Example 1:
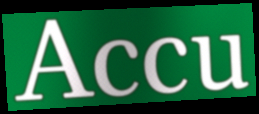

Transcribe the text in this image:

Accu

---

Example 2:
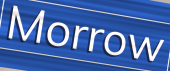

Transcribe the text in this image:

Morrow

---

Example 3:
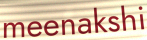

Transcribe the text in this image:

meenakshi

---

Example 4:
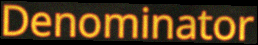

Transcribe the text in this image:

Denominator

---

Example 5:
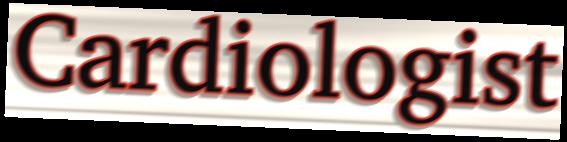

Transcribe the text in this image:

Cardiologist